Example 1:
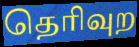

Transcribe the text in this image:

தெரிவுற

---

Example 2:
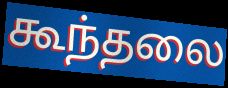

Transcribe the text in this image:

கூந்தலை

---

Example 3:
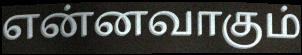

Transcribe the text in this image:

என்னவாகும்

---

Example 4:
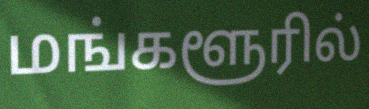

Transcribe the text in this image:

மங்களூரில்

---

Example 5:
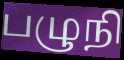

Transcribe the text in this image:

பழுநி